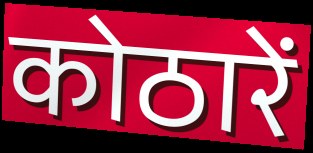
कोठारें